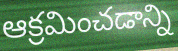
ఆక్రమించడాన్ని